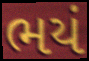
ભયં